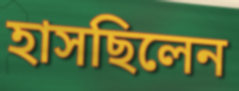
হাসছিলেন